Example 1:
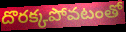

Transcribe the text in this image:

దొరక్కపోవటంతో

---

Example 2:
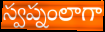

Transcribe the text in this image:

స్వప్నంలాగా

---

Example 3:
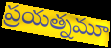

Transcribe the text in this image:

ప్రయత్నమూ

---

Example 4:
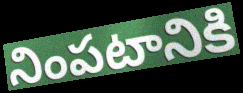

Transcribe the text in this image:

నింపటానికి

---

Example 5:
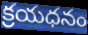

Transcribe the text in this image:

క్రయధనం